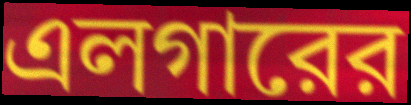
এলগারের